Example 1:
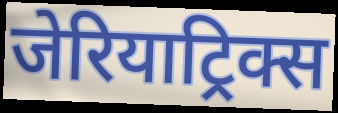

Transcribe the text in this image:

जेरियाट्रिक्स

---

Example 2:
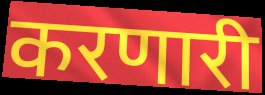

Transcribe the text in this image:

करणारी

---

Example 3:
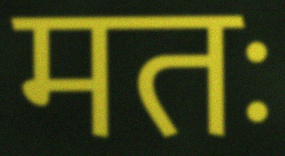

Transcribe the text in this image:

मतः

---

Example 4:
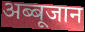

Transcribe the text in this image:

अब्बूजान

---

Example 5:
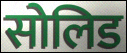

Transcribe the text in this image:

सोलिड